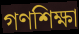
গণশিক্ষা